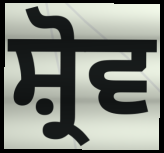
ਸ਼੍ਰੋਵ